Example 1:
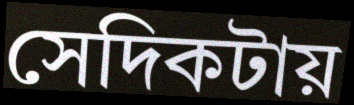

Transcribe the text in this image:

সেদিকটায়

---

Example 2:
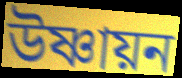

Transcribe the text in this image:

উষ্ণায়ন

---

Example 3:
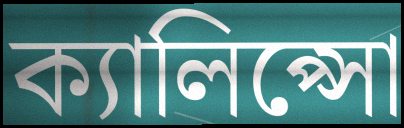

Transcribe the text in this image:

ক্যালিপ্সো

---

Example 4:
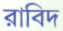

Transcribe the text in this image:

রাবিদ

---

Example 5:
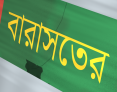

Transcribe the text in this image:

বারাসতের